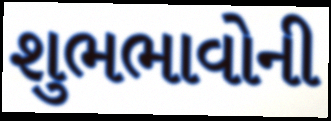
શુભભાવોની